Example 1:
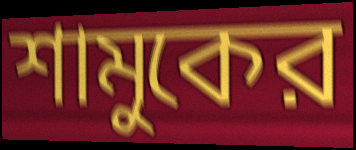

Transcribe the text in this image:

শামুকের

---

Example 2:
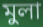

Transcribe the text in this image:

মুলা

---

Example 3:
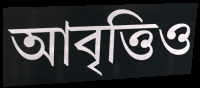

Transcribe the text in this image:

আবৃত্তিও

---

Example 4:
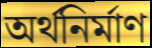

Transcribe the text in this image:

অর্থনির্মাণ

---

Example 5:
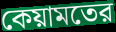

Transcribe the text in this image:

কেয়ামতের